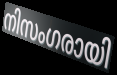
നിസംഗരായി